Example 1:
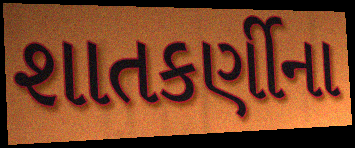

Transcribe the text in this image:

શાતકર્ણીના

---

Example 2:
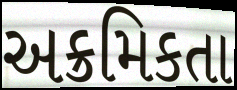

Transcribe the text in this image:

અક્રમિકતા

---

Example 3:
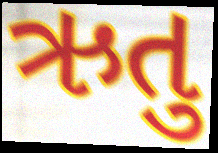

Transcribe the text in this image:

ઋતુ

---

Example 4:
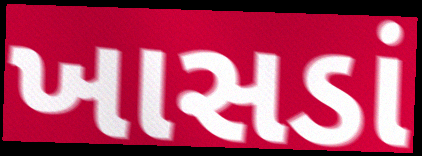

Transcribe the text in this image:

ખાસડાં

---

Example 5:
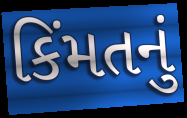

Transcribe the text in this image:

કિંમતનું